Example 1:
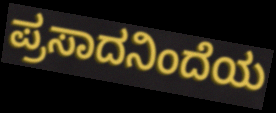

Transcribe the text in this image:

ಪ್ರಸಾದನಿಂದೆಯ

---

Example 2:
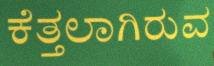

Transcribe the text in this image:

ಕೆತ್ತಲಾಗಿರುವ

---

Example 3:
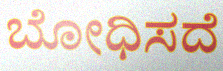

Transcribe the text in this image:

ಬೋಧಿಸದೆ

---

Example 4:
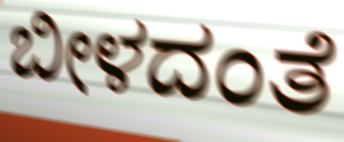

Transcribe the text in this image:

ಬೀಳದಂತೆ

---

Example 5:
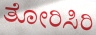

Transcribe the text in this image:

ತೋರಿಸಿರಿ